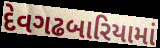
દેવગઢબારિયામાં